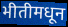
भीतीमधून